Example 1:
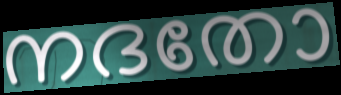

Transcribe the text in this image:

നദതോ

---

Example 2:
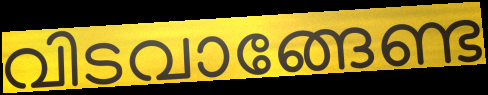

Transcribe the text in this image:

വിടവാങ്ങേണ്ട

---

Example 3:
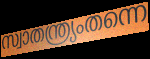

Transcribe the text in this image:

സ്വാതന്ത്ര്യംതന്നെ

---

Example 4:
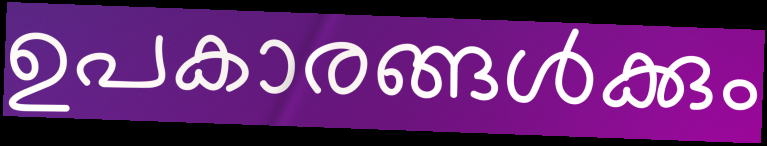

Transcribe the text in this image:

ഉപകാരങ്ങൾക്കും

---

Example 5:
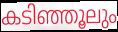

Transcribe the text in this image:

കടിഞ്ഞൂലും